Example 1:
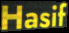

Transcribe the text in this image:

Hasif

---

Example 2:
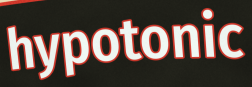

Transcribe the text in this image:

hypotonic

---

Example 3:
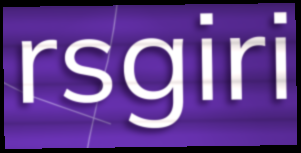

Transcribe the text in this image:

rsgiri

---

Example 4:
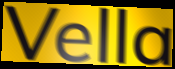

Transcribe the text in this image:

Vella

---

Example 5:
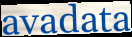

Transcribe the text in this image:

avadata